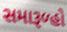
સમારૂળ્હો